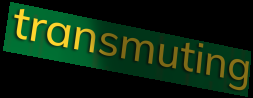
transmuting